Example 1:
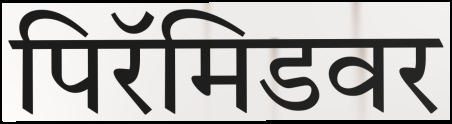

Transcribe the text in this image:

पिरॅमिडवर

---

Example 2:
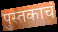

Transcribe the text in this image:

पुस्तकाचं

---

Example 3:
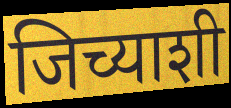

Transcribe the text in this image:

जिच्याशी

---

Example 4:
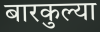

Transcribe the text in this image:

बारकुल्या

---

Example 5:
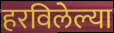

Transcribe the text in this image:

हरविलेल्या